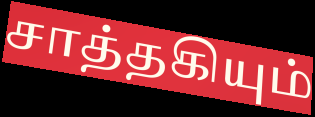
சாத்தகியும்